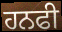
ਹਨਫੀ